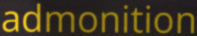
admonition